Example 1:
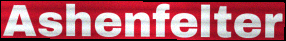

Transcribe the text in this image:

Ashenfelter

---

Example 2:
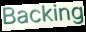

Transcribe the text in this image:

Backing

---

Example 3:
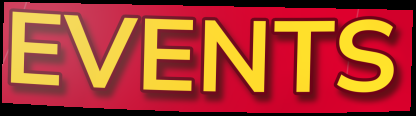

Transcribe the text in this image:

EVENTS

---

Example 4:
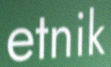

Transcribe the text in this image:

etnik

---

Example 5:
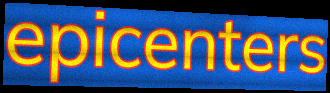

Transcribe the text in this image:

epicenters